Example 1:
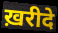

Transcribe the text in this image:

ख़रीदे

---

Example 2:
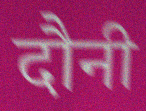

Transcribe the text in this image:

दौनी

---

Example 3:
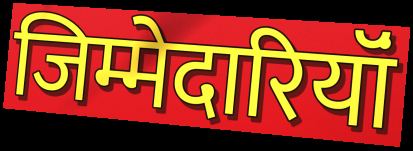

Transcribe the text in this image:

जिम्मेदारियॉं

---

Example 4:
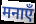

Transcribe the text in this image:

मनाएँ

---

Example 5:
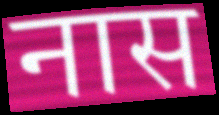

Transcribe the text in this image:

नास